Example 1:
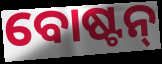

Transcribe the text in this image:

ବୋଷ୍ଟନ୍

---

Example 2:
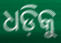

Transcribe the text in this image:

ଧଡ଼ିକୁ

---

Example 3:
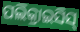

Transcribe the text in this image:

ପଲିକ୍ରାଇସିସ୍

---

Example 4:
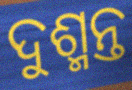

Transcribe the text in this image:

ଦୁଶ୍ମନ୍ତ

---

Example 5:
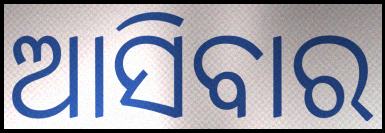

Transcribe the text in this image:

ଆସିବାର